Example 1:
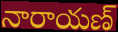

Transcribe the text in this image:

నారాయణ్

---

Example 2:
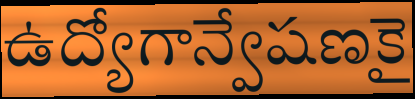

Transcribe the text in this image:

ఉద్యోగాన్వేషణకై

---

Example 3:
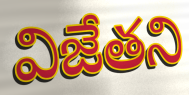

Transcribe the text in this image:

విజేతని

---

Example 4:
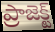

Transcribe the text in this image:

ప్రాజెక్ట్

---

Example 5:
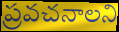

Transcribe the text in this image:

ప్రవచనాలని